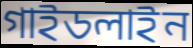
গাইডলাইন